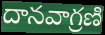
దానవాగ్రణి